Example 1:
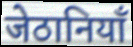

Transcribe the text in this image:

जेठानियाँ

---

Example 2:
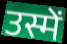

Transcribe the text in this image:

उस्में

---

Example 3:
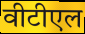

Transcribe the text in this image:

वीटीएल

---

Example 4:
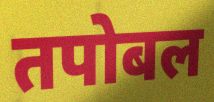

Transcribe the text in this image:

तपोबल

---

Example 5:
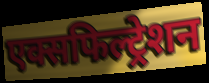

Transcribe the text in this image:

एक्सफिल्ट्रेशन